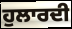
ਹੁਲਾਰਦੀ